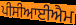
ਪੀਸੀਆਈਐਮ